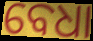
ବେଧା